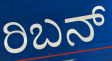
ರಿಬನ್